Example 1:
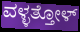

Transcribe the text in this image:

ವಳ್ಳತ್ತೋಳ್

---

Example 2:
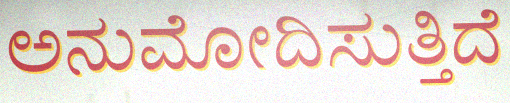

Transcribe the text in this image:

ಅನುಮೋದಿಸುತ್ತಿದೆ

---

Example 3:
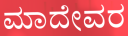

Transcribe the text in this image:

ಮಾದೇವರ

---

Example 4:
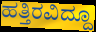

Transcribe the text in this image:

ಹತ್ತಿರವಿದ್ದೂ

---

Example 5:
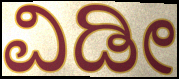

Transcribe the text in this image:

ವಿಡೀ